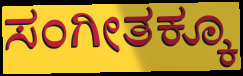
ಸಂಗೀತಕ್ಕೂ